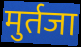
मुर्तजा